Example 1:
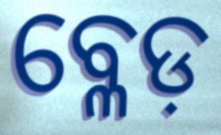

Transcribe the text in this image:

ବ୍ଳେଡ଼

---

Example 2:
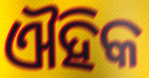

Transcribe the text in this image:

ଐହିକ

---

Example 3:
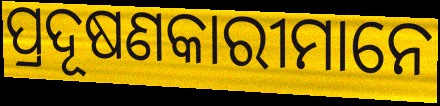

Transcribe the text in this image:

ପ୍ରଦୂଷଣକାରୀମାନେ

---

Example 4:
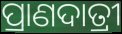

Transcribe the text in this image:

ପ୍ରାଣଦାତ୍ରୀ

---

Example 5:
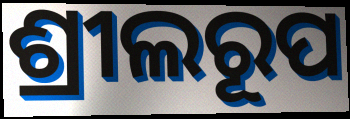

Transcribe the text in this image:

ଶ୍ରୀଲରୂପ